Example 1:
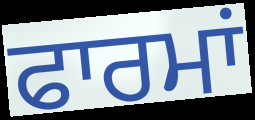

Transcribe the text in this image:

ਫਾਰਮਾਂ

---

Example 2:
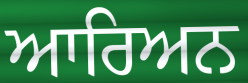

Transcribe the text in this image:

ਆਰਿਅਨ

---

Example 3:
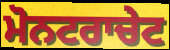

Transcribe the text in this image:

ਮੋਨਟਰਾਚੇਟ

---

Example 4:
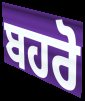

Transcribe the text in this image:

ਬਹਰੋ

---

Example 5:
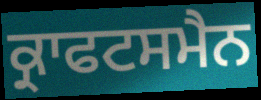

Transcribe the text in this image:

ਕ੍ਰਾਫਟਸਮੈਨ